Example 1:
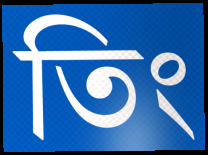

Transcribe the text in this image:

তিং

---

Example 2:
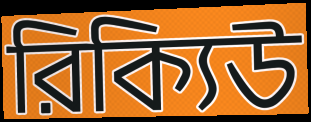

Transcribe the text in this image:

রিক্যিউ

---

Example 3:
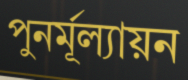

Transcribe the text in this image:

পুনর্মূল্যায়ন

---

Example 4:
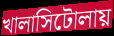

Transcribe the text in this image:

খালাসিটোলায়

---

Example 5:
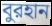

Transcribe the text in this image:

বুরহান